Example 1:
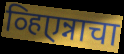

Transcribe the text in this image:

व्हिएन्नाचा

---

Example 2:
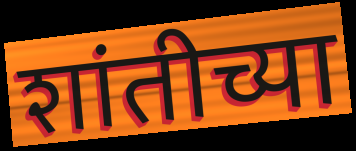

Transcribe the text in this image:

शांतीच्या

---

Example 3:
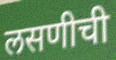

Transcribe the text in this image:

लसणीची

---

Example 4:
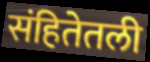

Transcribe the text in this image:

संहितेतली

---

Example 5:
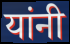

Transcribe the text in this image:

यांनी